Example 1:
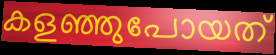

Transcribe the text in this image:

കളഞ്ഞുപോയത്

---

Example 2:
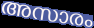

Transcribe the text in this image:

അസാരം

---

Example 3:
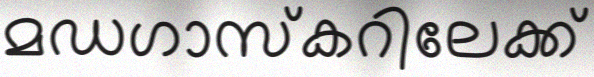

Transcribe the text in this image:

മഡഗാസ്കറിലേക്ക്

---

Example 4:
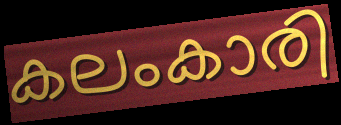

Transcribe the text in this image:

കലംകാരി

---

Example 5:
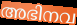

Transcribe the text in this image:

അഭിനവ